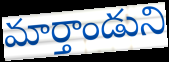
మార్తాండుని